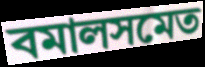
বমালসমেত